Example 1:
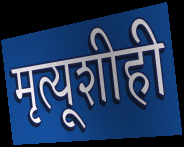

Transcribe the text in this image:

मृत्यूशीही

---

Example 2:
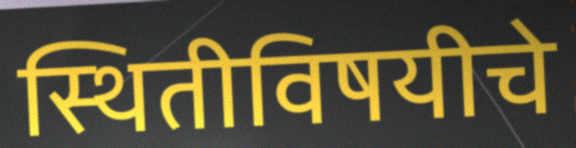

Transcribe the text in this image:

स्थितीविषयीचे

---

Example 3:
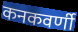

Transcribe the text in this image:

कनकवर्णी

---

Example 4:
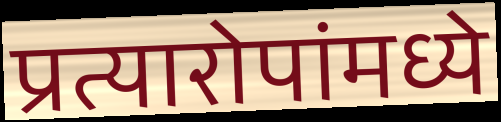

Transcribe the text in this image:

प्रत्यारोपांमध्ये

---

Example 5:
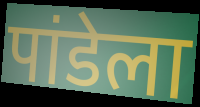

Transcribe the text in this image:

पांडेला